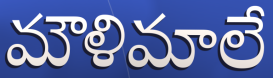
మౌళిమాలే